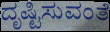
ದೃಷ್ಟಿಸುವಂತೆ